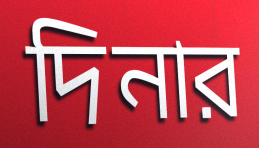
দিনার